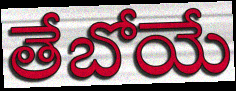
తేబోయే